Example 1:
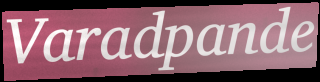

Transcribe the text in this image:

Varadpande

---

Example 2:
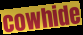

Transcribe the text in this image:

cowhide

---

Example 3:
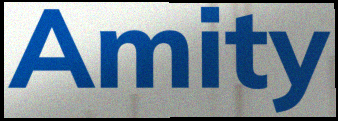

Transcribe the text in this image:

Amity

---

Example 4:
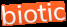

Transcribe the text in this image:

biotic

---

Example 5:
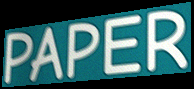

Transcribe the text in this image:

PAPER